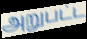
அறுபட்ட